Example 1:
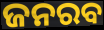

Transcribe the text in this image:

ଜନରବ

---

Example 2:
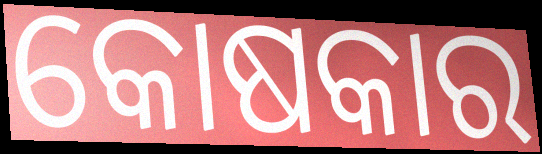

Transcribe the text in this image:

କୋଷକାର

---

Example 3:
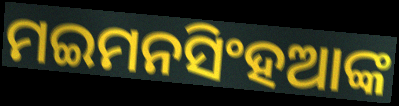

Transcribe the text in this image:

ମଇମନସିଂହଆଙ୍କ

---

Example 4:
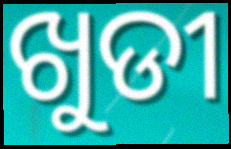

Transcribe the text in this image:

ଖୁଡୀ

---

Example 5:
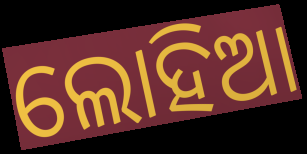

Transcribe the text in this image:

ଲୋହିଆ